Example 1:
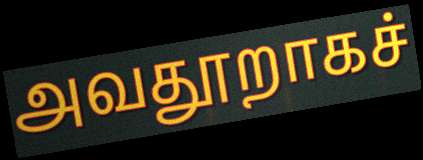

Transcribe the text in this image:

அவதூறாகச்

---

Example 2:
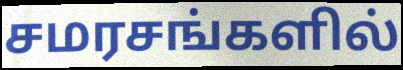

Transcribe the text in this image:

சமரசங்களில்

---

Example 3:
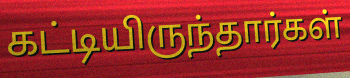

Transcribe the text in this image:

கட்டியிருந்தார்கள்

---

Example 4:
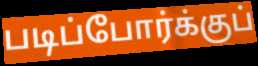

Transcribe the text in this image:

படிப்போர்க்குப்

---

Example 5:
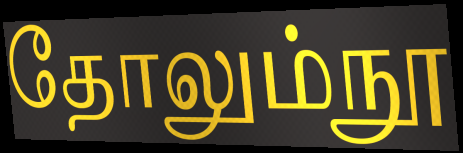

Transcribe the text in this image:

தோலும்நூ